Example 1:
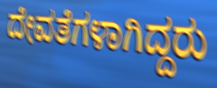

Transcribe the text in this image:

ದೇವತೆಗಳಾಗಿದ್ದರು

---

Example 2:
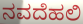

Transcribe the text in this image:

ನವದೆಹಲಿ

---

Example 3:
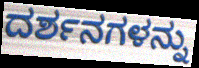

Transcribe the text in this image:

ದರ್ಶನಗಳನ್ನು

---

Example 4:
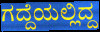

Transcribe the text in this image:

ಗದ್ದೆಯಲ್ಲಿದ್ದ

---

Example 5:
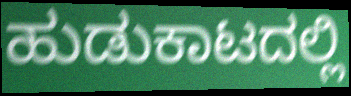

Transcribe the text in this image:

ಹುಡುಕಾಟದಲ್ಲಿ